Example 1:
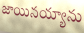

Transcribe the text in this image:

జాయినయ్యాను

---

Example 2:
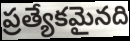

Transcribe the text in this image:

ప్రత్యేకమైనది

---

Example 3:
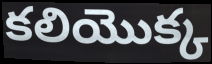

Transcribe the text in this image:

కలియొక్క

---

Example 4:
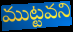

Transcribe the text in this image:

ముట్టవని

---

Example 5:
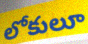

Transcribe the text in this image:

లోకులూ